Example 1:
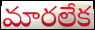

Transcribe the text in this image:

మారలేక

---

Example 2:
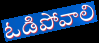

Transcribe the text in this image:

ఓడిపోవాలి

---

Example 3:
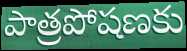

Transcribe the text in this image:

పాత్రపోషణకు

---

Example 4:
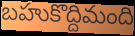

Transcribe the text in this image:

బహుకొద్దిమంది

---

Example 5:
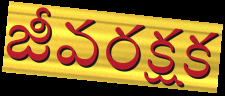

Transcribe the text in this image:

జీవరక్షక